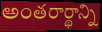
అంతరార్థాన్ని